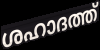
ശഹാദത്ത്